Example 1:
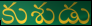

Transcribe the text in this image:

కుశుడు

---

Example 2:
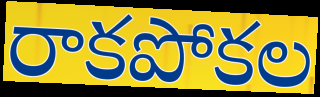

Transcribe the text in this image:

రాకపోకల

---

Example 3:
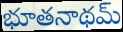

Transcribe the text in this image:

భూతనాథమ్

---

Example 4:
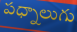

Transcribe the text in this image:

పధ్నాలుగు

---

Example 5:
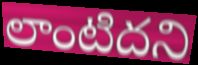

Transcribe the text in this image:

లాంటిదని